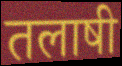
तलाषी